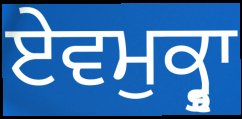
ਏਵਮੁਕ੍ਤ੍ਵਾ